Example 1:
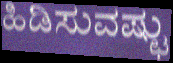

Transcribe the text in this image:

ಹಿಡಿಸುವಷ್ಟು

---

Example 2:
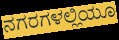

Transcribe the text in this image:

ನಗರಗಳಲ್ಲಿಯೂ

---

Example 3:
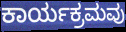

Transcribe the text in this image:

ಕಾರ್ಯಕ್ರಮವು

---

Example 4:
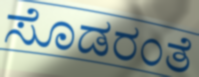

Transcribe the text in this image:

ಸೊಡರಂತೆ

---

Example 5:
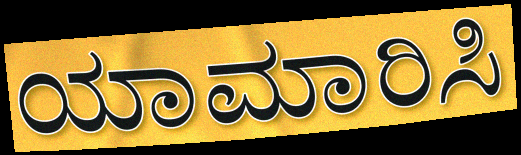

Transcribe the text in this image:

ಯಾಮಾರಿಸಿ